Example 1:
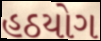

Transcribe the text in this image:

હઠયોગ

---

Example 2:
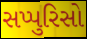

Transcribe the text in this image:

સપ્પુરિસો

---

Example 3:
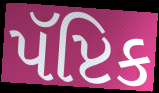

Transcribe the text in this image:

પૅપ્ટિક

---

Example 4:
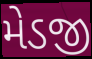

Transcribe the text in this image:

મેડજી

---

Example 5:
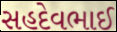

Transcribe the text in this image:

સહદેવભાઈ